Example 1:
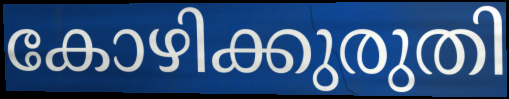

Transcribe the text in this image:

കോഴിക്കുരുതി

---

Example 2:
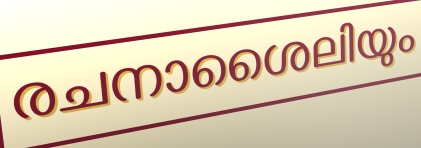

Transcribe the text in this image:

രചനാശൈലിയും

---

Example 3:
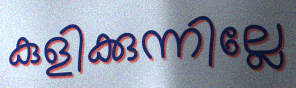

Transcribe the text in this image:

കുളിക്കുന്നില്ലേ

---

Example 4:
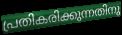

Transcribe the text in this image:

പ്രതികരിക്കുന്നതിനു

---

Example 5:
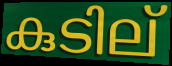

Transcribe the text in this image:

കുടില്